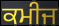
ਕਮੀਜ